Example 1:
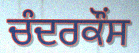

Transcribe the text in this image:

ਚੰਦਰਕੌਂਸ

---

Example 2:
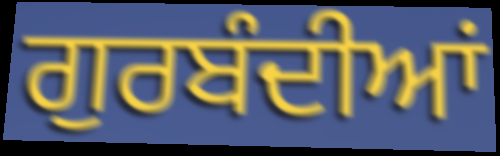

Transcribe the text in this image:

ਗੁਰਬੰਦੀਆਂ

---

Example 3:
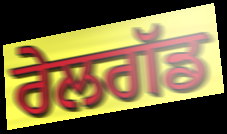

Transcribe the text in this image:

ਰੇਲਗੱਡ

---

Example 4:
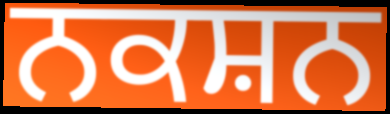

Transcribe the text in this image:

ਨਕਸ਼ਨ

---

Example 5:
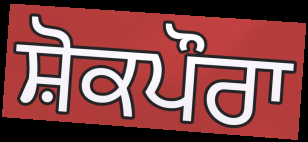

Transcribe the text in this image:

ਸ਼ੋਕਪੌਰਾ